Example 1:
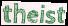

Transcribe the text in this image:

theist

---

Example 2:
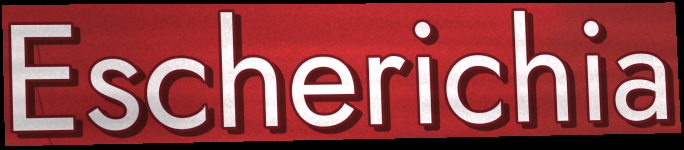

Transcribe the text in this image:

Escherichia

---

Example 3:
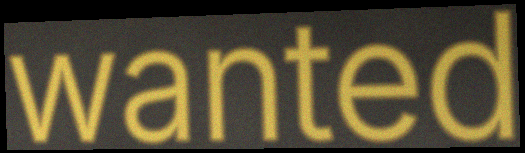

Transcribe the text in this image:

wanted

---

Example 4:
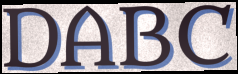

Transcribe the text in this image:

DABC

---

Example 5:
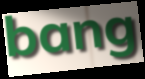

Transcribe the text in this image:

bang